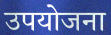
उपयोजना